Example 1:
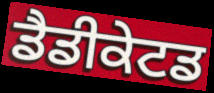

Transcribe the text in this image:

ਡੈਡੀਕੇਟਡ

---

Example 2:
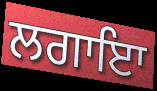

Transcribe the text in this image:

ਲਗਾਇਾ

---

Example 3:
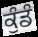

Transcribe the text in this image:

ਕੁੰਡੰ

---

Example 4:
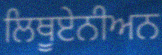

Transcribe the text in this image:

ਲਿਥੂਏਨੀਅਨ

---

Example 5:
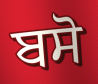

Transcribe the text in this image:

ਬਸੋ